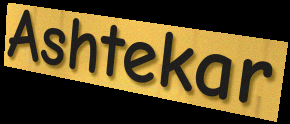
Ashtekar